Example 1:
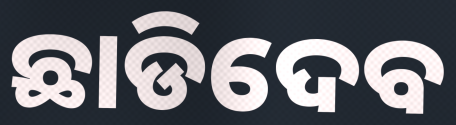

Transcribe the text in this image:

ଛାଡିଦେବ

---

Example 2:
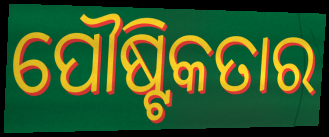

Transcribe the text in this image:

ପୌଷ୍ଟିକତାର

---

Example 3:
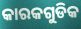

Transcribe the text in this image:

କାରକଗୁଡିକ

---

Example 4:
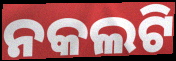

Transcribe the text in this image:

ନକଲଟି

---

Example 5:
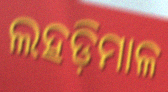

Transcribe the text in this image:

ଲହଡ଼ିମାଳ